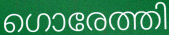
ഗൊരേത്തി